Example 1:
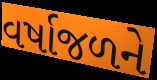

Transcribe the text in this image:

વર્ષાજળને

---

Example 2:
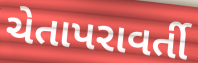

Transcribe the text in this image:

ચેતાપરાવર્તી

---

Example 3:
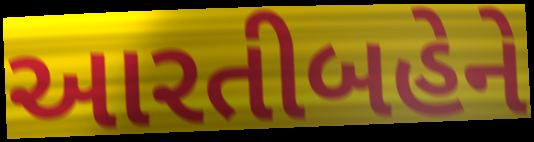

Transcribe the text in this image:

આરતીબહેને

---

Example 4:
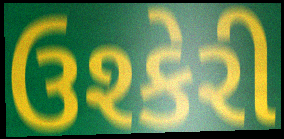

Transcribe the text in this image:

ઉશ્કેરી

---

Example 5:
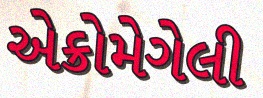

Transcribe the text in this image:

એક્રોમેગેલી